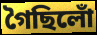
গৈছিলোঁ